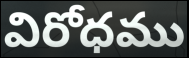
విరోధము